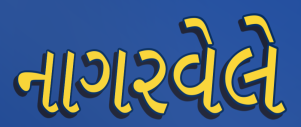
નાગરવેલે